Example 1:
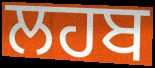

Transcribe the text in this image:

ਲਹਬ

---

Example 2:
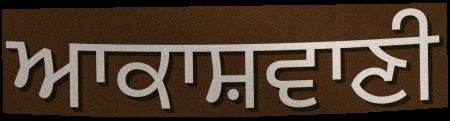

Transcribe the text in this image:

ਆਕਾਸ਼ਵਾਣੀ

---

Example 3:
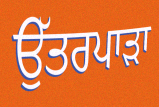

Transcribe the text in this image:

ਉੱਤਰਪਾੜਾ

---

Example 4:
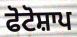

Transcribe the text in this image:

ਫੋਟੋਸ਼ਾਪ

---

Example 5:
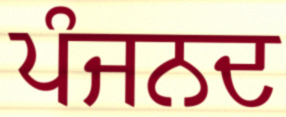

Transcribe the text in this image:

ਪੰਜਨਦ